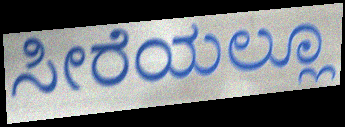
ಸೀರೆಯಲ್ಲೂ